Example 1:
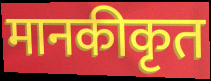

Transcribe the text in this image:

मानकीकृत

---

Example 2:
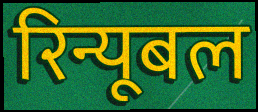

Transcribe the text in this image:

रिन्यूबल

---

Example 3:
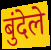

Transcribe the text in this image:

बुंदेले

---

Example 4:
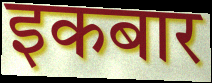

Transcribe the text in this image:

इकबार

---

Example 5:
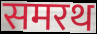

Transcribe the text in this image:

समरथ